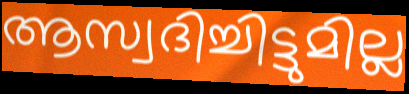
ആസ്വദിച്ചിട്ടുമില്ല